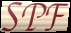
SPF